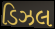
ડિઝલ